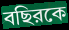
বছিরকে